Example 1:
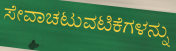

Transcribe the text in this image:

ಸೇವಾಚಟುವಟಿಕೆಗಳನ್ನು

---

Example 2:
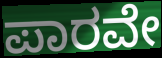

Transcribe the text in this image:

ಪಾರವೇ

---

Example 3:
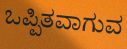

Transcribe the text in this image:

ಒಪ್ಪಿತವಾಗುವ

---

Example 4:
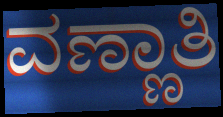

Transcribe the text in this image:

ವಣ್ಣಾತಿ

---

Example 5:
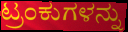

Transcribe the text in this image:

ಟ್ರಂಕುಗಳನ್ನು